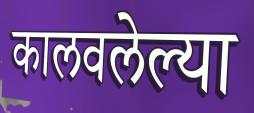
कालवलेल्या